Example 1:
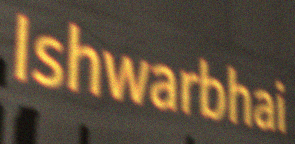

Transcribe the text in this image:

Ishwarbhai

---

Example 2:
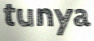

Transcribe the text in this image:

tunya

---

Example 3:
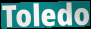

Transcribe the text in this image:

Toledo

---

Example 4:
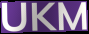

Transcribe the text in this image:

UKM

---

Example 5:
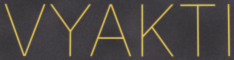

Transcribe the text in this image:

VYAKTI